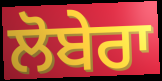
ਲੋਬੇਰਾ